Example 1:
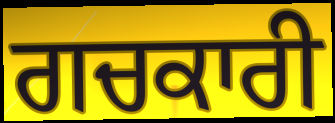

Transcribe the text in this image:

ਗਚਕਾਰੀ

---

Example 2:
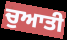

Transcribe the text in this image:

ਚੁਆਤੀ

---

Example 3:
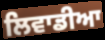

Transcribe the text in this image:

ਲਿਵਾਡੀਆ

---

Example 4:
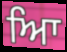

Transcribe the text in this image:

ਆਿ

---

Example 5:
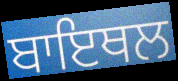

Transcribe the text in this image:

ਬਾਇਥਲ